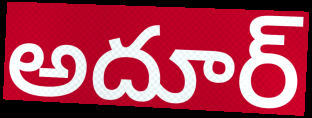
అదూర్